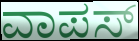
ವಾಪಸ್